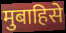
मुबाहिसे